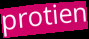
protien